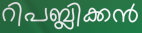
റിപബ്ലിക്കൻ